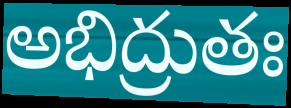
అభిద్రుతః